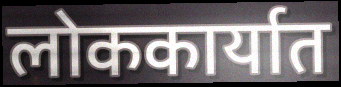
लोककार्यात